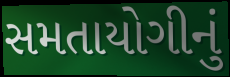
સમતાયોગીનું